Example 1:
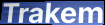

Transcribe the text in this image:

Trakem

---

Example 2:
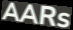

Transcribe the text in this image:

AARs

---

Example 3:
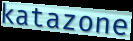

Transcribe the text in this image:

katazone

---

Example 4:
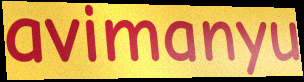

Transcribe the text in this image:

avimanyu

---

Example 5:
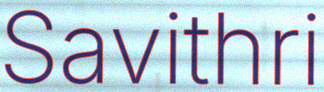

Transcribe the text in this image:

Savithri